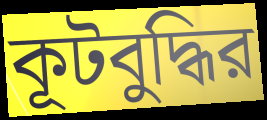
কূটবুদ্ধির